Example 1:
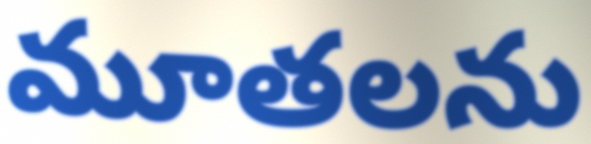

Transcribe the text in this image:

మూతలను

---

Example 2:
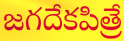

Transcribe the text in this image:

జగదేకపిత్రే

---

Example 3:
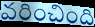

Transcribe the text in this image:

వరించింది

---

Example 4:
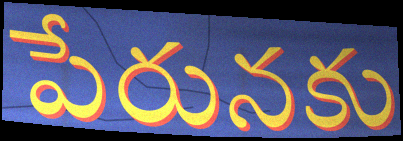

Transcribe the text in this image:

పేరునకు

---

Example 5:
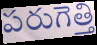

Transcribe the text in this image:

పరుగెత్తి